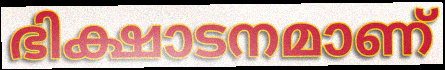
ഭിക്ഷാടനമാണ്